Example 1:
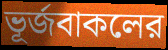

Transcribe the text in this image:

ভূর্জবাকলের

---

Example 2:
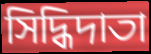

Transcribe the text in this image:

সিদ্ধিদাতা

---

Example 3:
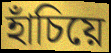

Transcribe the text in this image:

হাঁচিয়ে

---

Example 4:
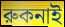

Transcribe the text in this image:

রুকনাই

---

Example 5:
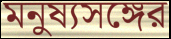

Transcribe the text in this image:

মনুষ্যসঙ্গের